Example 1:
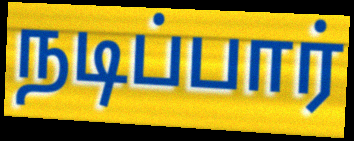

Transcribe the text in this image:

நடிப்பார்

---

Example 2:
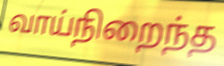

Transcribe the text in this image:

வாய்நிறைந்த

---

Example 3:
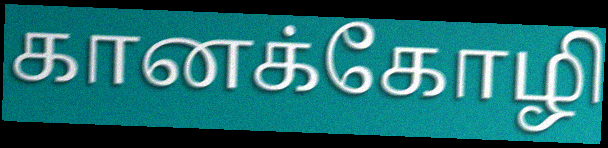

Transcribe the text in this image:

கானக்கோழி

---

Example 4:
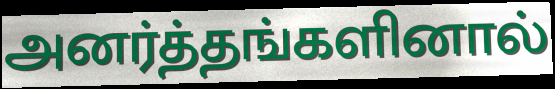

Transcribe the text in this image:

அனர்த்தங்களினால்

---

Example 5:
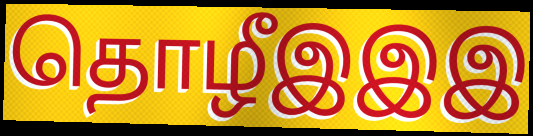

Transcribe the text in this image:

தொழீஇஇஇ